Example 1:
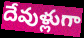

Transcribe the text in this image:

దేవుళ్లుగా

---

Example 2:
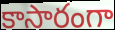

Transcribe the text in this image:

కాసారంగా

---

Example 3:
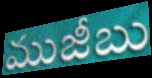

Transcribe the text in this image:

ముజీబు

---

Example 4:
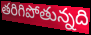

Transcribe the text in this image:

తరిగిపోతున్నది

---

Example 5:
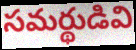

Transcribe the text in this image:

సమర్థుడివి